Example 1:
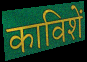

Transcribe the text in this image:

काविशें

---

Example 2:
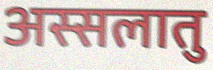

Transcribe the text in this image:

अस्सलातु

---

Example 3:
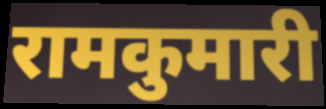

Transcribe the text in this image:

रामकुमारी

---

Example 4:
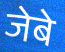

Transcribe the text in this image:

जेबे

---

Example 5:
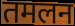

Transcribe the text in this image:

तमलन